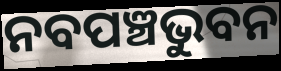
ନବପଞ୍ଚଭୁବନ